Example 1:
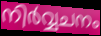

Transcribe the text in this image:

നിർവ്വചനം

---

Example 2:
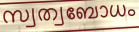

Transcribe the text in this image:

സ്വത്വബോധം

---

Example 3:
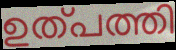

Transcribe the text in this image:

ഉത്പത്തി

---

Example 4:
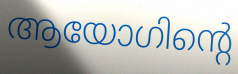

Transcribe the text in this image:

ആയോഗിന്റെ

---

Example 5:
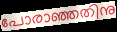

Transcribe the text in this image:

പോരാഞ്ഞതിനു